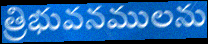
త్రిభువనములను